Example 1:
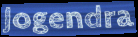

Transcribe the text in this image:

Jogendra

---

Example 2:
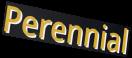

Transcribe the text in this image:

Perennial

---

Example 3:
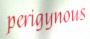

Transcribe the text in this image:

perigynous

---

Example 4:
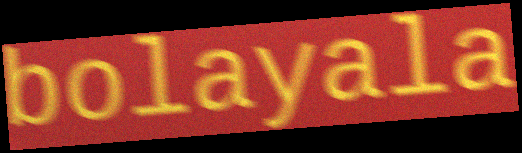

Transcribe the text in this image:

bolayala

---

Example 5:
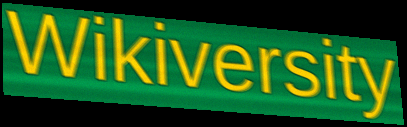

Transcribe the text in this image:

Wikiversity